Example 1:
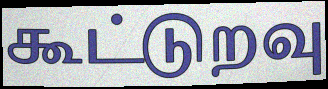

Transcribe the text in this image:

கூட்டுறவு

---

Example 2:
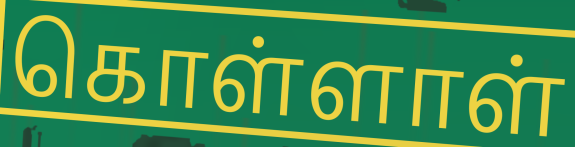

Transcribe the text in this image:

கொள்ளாள்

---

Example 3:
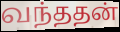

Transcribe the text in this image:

வந்ததன்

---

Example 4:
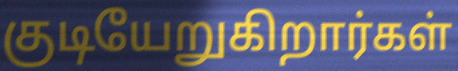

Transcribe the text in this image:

குடியேறுகிறார்கள்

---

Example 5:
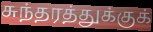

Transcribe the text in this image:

சுந்தரத்துக்குக்